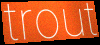
trout